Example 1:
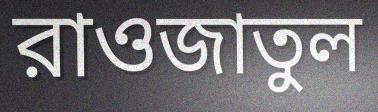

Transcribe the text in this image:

রাওজাতুল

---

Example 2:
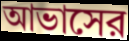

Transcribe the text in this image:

আভাসের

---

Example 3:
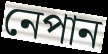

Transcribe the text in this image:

নেপান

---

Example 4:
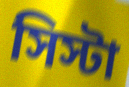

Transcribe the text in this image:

সিস্টা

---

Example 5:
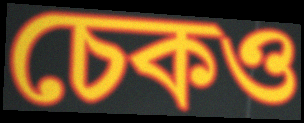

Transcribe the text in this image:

চেকও